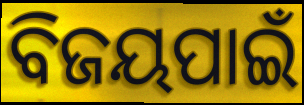
ବିଜୟପାଇଁ